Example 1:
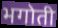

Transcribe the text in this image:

भगोती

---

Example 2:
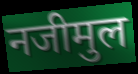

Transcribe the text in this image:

नजीमुल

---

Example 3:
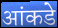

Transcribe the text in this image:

आंकडे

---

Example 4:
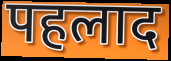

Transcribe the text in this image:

पहलाद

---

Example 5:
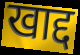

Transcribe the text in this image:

खाद्द